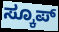
ಸ್ಕೂಪ್